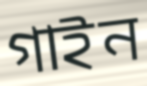
গাইন